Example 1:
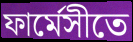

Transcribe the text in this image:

ফার্মেসীতে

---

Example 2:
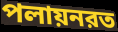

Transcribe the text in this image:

পলায়নরত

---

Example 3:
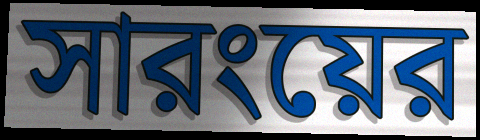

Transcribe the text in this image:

সারংয়ের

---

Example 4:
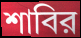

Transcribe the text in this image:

শাবির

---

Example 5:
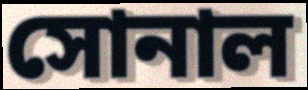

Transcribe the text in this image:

সোনাল